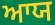
ਆਯ